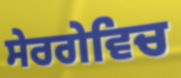
ਸੇਰਗੇਵਿਚ